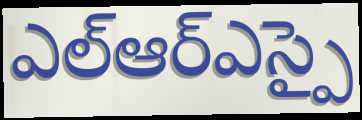
ఎల్ఆర్ఎస్పై